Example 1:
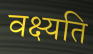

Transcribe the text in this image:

वक्ष्यति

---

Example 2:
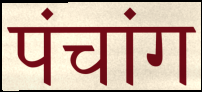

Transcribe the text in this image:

पंचांग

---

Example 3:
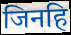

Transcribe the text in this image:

जिनहि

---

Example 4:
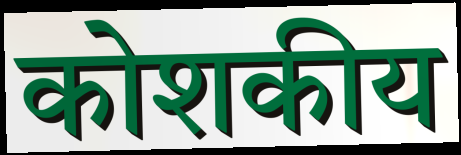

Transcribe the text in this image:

कोशकीय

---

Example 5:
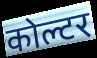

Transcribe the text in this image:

कोल्टर